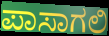
ಪಾಸಾಗಲಿ